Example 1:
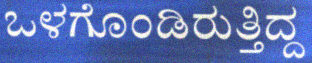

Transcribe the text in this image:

ಒಳಗೊಂಡಿರುತ್ತಿದ್ದ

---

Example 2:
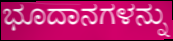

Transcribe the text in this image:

ಭೂದಾನಗಳನ್ನು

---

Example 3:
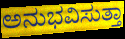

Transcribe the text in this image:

ಅನುಭವಿಸುತ್ತಾ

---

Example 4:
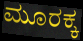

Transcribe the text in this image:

ಮೂರಕ್ಕ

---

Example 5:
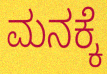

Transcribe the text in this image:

ಮನಕ್ಕೆ